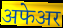
अफेअर